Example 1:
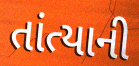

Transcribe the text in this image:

તાંત્યાની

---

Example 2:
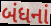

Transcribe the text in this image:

બંધનાં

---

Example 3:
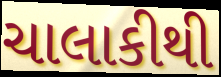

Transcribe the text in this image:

ચાલાકીથી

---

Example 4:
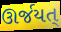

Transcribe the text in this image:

ઊર્જયત્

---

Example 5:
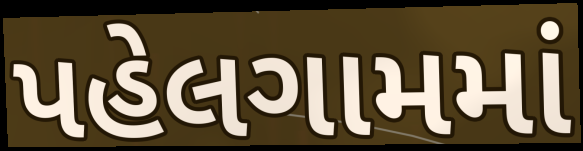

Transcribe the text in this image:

પહેલગામમાં